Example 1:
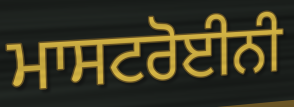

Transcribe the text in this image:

ਮਾਸਟਰੋਈਨੀ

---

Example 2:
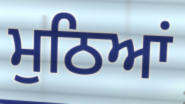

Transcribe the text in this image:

ਮੁਠਿਆਂ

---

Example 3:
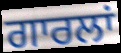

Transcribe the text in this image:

ਗਾਰਲਾਂ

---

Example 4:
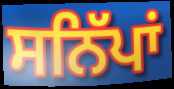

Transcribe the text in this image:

ਸਨਿੱਪਾਂ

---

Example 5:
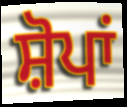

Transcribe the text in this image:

ਸ਼ੋਪਾਂ